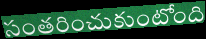
సంతరించుకుంటోంది